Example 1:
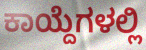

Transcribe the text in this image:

ಕಾಯ್ದೆಗಳಲ್ಲಿ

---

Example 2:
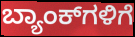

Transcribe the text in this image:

ಬ್ಯಾಂಕ್‌ಗಳಿಗೆ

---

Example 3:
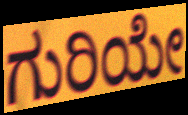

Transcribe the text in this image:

ಗುರಿಯೇ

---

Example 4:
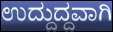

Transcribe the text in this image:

ಉದ್ದುದ್ದವಾಗಿ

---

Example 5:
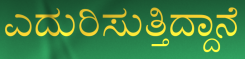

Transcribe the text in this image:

ಎದುರಿಸುತ್ತಿದ್ದಾನೆ